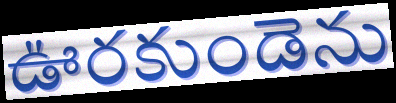
ఊరకుండెను